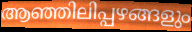
ആഞ്ഞിലിപ്പഴങ്ങളും